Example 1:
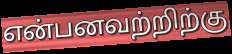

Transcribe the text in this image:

என்பனவற்றிற்கு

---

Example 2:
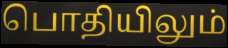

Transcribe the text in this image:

பொதியிலும்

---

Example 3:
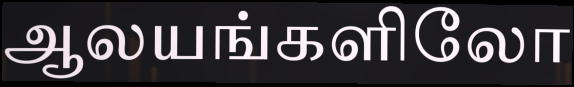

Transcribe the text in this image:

ஆலயங்களிலோ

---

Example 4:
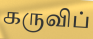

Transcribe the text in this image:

கருவிப்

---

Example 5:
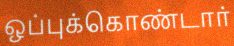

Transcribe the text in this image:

ஒப்புக்கொண்டார்